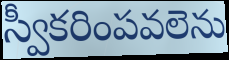
స్వీకరింపవలెను